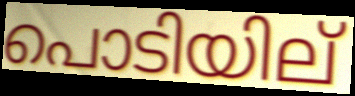
പൊടിയില്